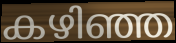
കഴിഞ്ഞ